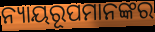
ନ୍ୟାୟରୂପମାନଙ୍କର